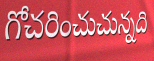
గోచరించుచున్నది